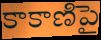
కాకాణిపై